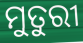
ମୁତୁରୀ